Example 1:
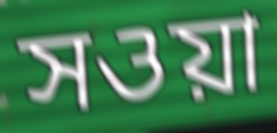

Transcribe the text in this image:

সওয়া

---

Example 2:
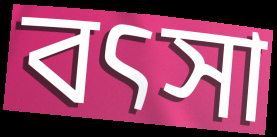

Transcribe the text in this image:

বৎসা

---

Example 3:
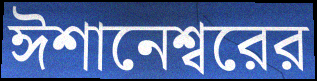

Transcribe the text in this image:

ঈশানেশ্বরের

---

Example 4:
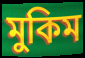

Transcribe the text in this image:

মুকিম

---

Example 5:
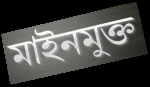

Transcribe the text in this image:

মাইনমুক্ত